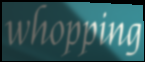
whopping